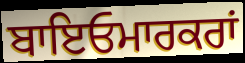
ਬਾਇਓਮਾਰਕਰਾਂ